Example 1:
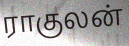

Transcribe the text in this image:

ராகுலன்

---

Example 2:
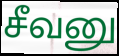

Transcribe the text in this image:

சீவனு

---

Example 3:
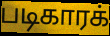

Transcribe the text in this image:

படிகாரக்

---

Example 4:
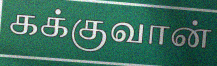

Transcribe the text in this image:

கக்குவான்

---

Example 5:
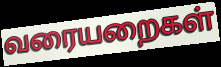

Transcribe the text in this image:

வரையறைகள்